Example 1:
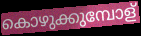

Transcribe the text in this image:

കൊഴുക്കുമ്പോള്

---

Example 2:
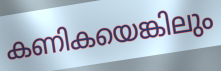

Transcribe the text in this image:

കണികയെങ്കിലും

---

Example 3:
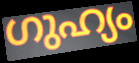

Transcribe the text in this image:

ഗുഹ്യം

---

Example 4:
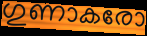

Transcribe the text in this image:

ഗുണാകരോ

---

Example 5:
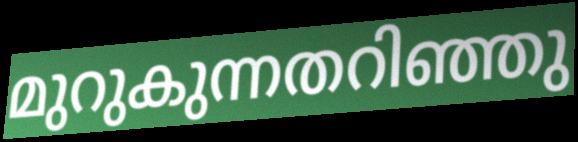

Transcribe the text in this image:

മുറുകുന്നതറിഞ്ഞു